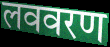
लववरण